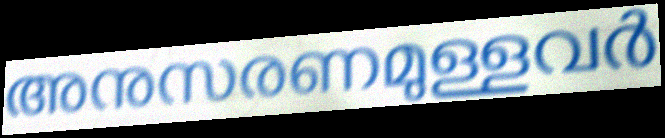
അനുസരണമുള്ളവർ